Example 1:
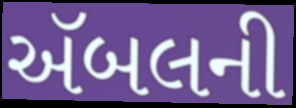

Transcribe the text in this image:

ઍબલની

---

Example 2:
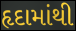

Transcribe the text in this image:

હૃદામાંથી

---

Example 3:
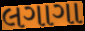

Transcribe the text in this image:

લગાગા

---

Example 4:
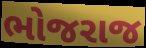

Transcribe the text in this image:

ભોજરાજ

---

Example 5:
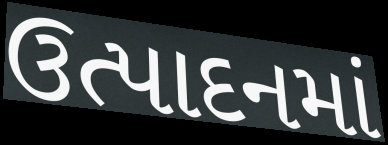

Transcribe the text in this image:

ઉત્પાદનમાં